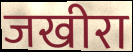
जखीरा